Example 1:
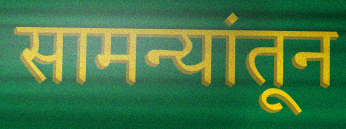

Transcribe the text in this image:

सामन्यांतून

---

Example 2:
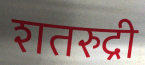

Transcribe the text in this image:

शतरुद्री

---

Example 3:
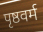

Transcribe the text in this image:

पृष्ठवर्म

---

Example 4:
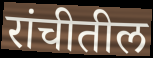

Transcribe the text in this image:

रांचीतील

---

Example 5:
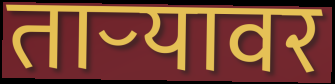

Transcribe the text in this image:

ताऱ्यावर